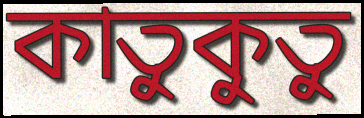
কাতুকুতু